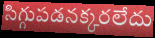
సిగ్గుపడనక్కరలేదు